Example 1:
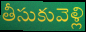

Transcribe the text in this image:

తీసుకువెళ్లి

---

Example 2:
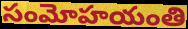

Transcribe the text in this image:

సంమోహయంతి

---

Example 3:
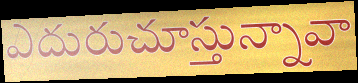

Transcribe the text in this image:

ఎదురుచూస్తున్నావా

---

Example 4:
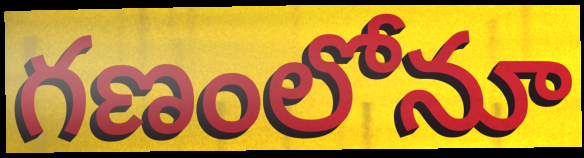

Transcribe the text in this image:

గణంలోనూ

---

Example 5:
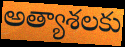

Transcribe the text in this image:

అత్యాశలకు